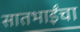
सातभाईंचा